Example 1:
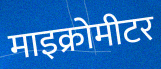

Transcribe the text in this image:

माइक्रोमीटर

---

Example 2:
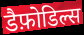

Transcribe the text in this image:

डैफ़ोडिल्स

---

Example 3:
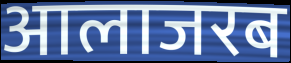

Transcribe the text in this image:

आलाजरब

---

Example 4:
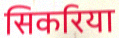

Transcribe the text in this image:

सिकरिया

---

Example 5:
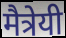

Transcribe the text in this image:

मैत्रेयी